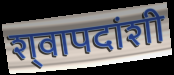
श्वापदांशी